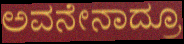
ಅವನೇನಾದ್ರೂ